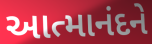
આત્માનંદને